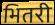
भितरी